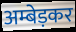
अम्बेड़कर